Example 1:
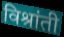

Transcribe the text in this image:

विश्रांती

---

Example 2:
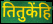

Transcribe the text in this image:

तितुकेंहि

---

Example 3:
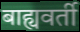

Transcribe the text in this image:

बाह्यवर्ती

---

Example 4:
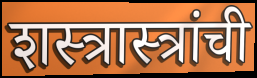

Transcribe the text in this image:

शस्त्रास्त्रांची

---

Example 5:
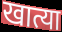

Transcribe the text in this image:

खात्या